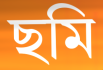
ছমি